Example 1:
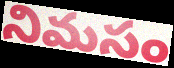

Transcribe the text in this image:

నిమసం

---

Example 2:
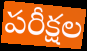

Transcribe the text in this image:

పరీక్షల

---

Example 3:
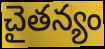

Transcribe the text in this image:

చైతన్యం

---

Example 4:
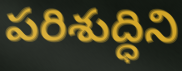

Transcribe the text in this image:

పరిశుద్ధిని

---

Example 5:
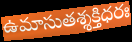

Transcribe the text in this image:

ఉమాసుతశ్శక్తిధరః